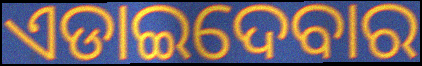
ଏଡାଇଦେବାର